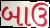
બાઉ